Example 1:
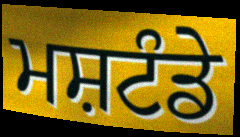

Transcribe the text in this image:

ਮਸ਼ਟੰਡੇ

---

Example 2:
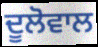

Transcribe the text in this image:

ਦੂਲੋਵਾਲ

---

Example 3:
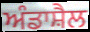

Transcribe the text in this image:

ਅੰਡਾਸ਼ੈਲ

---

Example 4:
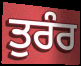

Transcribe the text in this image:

ਤੁਰੰਰ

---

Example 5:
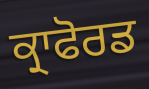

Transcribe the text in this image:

ਕ੍ਰਾਫੋਰਡ